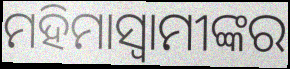
ମହିମାସ୍ୱାମୀଙ୍କର